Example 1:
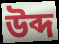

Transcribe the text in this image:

উব্দ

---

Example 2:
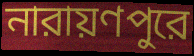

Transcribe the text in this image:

নারায়ণপুরে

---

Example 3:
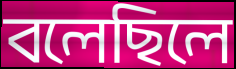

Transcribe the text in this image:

বলেছিলে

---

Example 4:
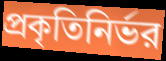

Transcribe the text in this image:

প্রকৃতিনির্ভর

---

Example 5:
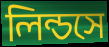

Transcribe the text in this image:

লিন্ডসে